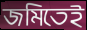
জমিতেই